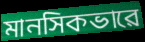
মানসিকভাৱে